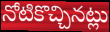
నోటికొచ్చినట్లు